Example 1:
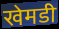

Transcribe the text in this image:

खेमडी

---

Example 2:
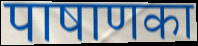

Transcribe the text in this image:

पाषाणका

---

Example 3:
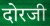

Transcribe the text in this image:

दोरजी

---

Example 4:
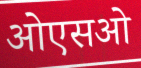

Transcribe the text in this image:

ओएसओ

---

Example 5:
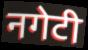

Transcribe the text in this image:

नगेटी